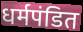
धर्मपंडित